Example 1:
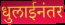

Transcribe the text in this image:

धुलाईनंतर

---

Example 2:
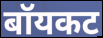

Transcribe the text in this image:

बॉयकट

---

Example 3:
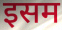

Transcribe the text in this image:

इसम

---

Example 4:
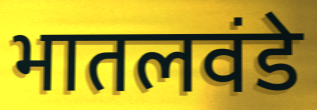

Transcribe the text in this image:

भातलवंडे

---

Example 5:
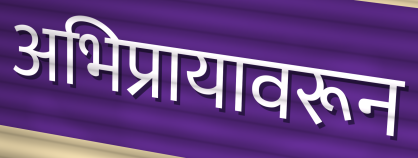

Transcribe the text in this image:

अभिप्रायावरून